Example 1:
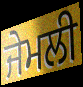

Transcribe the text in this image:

ਜੇਮਲੀ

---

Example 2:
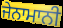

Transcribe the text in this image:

ਜੇਨਾਮਾਨੀ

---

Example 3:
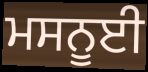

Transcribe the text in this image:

ਮਸਨੂਈ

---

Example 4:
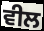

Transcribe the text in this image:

ਵੀਲ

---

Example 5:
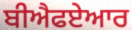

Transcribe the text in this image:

ਬੀਐਫਏਆਰ